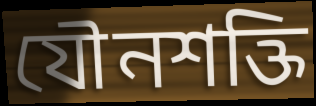
যৌনশক্তি